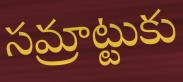
సమ్రాట్టుకు